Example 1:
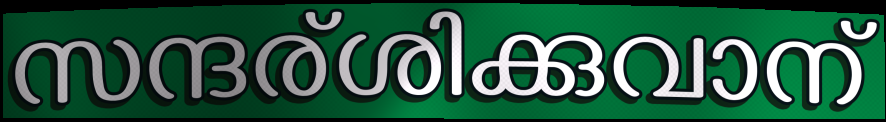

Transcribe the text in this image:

സന്ദര്ശിക്കുവാന്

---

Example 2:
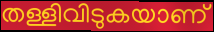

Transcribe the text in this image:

തള്ളിവിടുകയാണ്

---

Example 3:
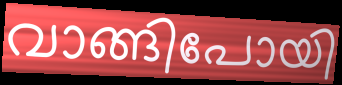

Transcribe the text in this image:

വാങ്ങിപോയി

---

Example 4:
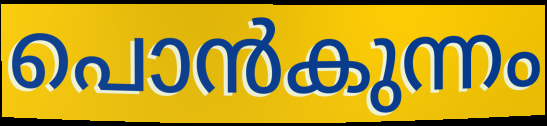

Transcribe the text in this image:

പൊൻകുന്നം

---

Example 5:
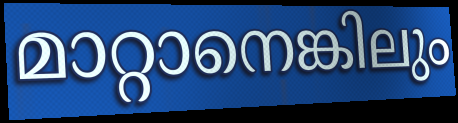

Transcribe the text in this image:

മാറ്റാനെങ്കിലും